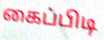
கைப்பிடி